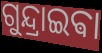
ଗୁନ୍ଦ୍ରାଇଵା